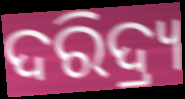
ଦରିଦ୍ର୍ୟ